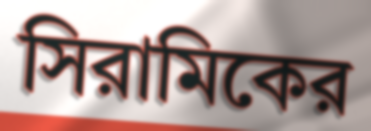
সিরামিকের